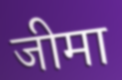
जीमा